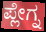
ಪ್ಲೇಗ್ನ